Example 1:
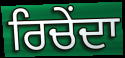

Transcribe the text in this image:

ਰਿਚੇਂਦਾ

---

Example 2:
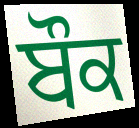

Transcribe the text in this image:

ਬੌਕ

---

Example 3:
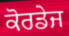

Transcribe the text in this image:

ਕੋਰਡੇਜ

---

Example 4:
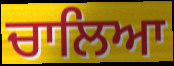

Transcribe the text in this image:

ਚਾਲਿਆ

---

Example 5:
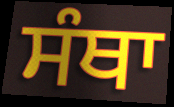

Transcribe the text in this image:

ਸੰਥਾ